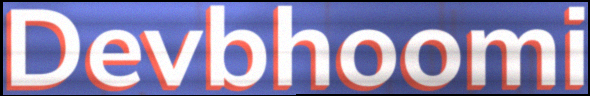
Devbhoomi